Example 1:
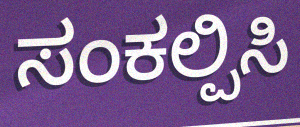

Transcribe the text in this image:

ಸಂಕಲ್ಪಿಸಿ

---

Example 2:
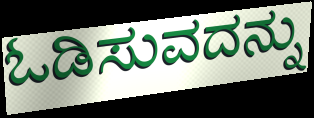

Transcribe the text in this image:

ಓಡಿಸುವದನ್ನು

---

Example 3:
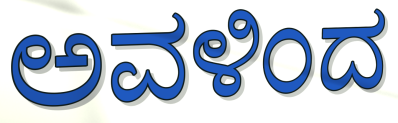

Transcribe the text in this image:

ಅವಳಿಂದ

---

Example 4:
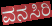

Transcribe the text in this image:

ವನಸಿರಿ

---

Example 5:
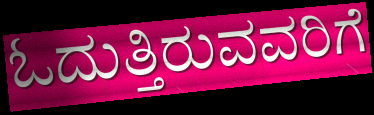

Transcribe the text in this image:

ಓದುತ್ತಿರುವವರಿಗೆ